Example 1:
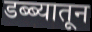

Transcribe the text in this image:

डब्ब्यातून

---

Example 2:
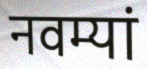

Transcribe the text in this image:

नवम्यां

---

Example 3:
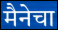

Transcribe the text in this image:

मैनेचा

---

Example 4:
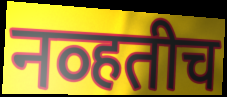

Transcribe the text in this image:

नव्हतीच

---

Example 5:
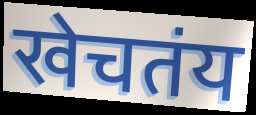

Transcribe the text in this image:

खेचतंय